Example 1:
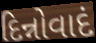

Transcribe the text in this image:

દિન્નોવાદં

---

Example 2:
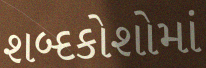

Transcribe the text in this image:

શબ્દકોશોમાં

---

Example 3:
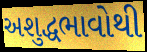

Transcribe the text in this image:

અશુદ્ધભાવોથી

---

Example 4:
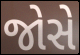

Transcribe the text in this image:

જોસે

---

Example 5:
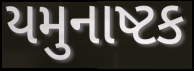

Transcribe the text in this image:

યમુનાષ્ટક